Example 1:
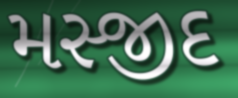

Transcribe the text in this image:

મસ્જીદ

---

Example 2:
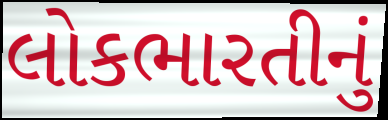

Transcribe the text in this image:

લોકભારતીનું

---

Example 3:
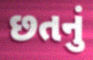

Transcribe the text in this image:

છતનું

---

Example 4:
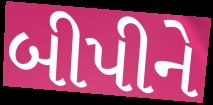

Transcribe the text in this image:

બીપીને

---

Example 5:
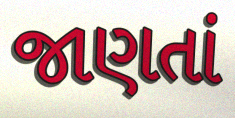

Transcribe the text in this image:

જાણતાં